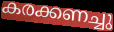
കരക്കണച്ചു